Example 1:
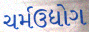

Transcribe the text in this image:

ચર્મઉદ્યોગ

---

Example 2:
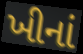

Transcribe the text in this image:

ખીનાં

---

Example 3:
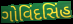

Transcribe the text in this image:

ગોવિંદસિંહ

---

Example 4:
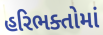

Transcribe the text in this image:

હરિભક્તોમાં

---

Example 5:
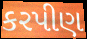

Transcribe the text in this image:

કરપીણ